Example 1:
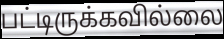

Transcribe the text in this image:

பட்டிருக்கவில்லை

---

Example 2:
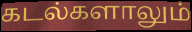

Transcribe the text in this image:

கடல்களாலும்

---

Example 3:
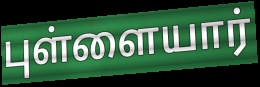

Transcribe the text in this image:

புள்ளையார்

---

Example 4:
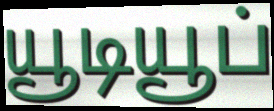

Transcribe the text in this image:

யூடியூப்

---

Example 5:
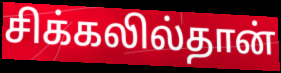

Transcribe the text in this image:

சிக்கலில்தான்